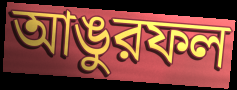
আঙুরফল